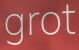
grot